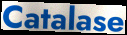
Catalase